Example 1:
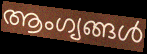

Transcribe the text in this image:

ആംഗ്യങ്ങൾ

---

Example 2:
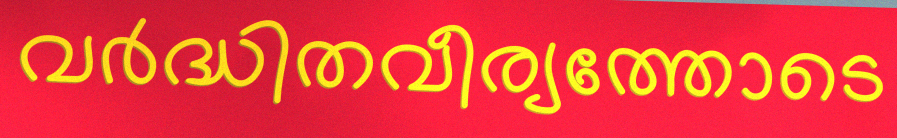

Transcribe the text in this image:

വർദ്ധിതവീര്യത്തോടെ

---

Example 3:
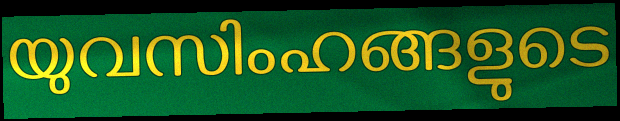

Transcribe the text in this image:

യുവസിംഹങ്ങളുടെ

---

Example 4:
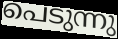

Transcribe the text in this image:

പെടുന്നു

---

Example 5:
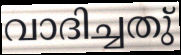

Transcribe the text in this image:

വാദിച്ചതു്